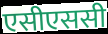
एसीएससी